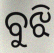
ବୁଝି